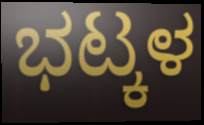
ಭಟ್ಕಳ